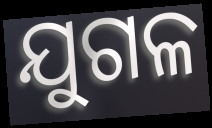
ଯୁଗଳ